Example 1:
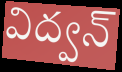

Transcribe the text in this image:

విద్వన్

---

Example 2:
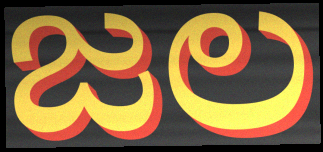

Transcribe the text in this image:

జల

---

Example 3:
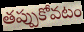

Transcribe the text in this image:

తప్పుకోవటం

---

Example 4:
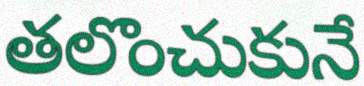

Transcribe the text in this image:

తలొంచుకునే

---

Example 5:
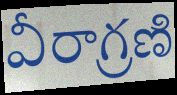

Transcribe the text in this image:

వీరాగ్రణి